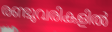
രണ്ടുവരികളിൽ